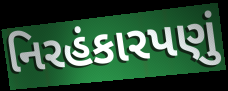
નિરહંકારપણું